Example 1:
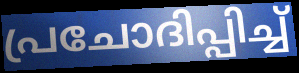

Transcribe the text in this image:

പ്രചോദിപ്പിച്ച്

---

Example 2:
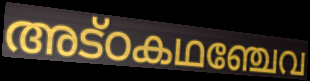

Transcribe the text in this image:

അട്ഠകഥഞ്ചേവ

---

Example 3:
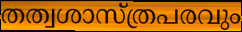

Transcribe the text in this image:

തത്വശാസ്ത്രപരവും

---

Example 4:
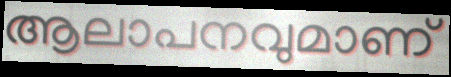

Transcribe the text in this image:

ആലാപനവുമാണ്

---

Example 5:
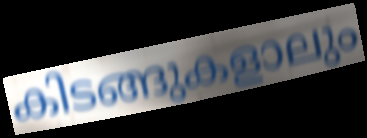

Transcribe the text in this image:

കിടങ്ങുകളാലും